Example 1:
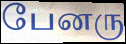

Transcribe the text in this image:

பேனரு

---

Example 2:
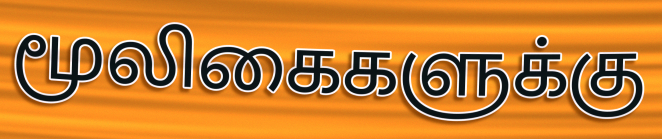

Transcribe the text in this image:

மூலிகைகளுக்கு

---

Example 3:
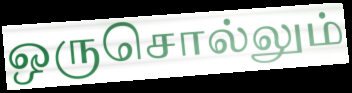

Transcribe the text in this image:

ஒருசொல்லும்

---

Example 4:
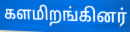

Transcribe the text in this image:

களமிறங்கினர்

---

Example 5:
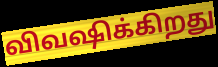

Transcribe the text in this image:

விவஷிக்கிறது